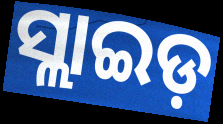
ସ୍ଲାଇଡ଼